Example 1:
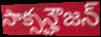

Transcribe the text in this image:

సాక్సన్హౌజన్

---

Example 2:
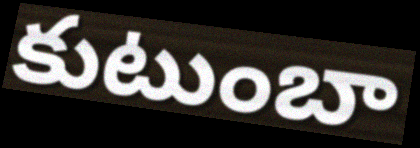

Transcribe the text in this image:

కుటుంబా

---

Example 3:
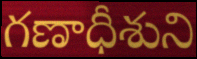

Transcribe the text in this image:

గణాధీశుని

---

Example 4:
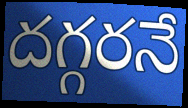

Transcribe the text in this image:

దగ్గరనే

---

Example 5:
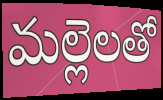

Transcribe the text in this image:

మల్లెలతో